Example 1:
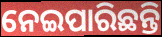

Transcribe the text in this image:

ନେଇପାରିଛନ୍ତି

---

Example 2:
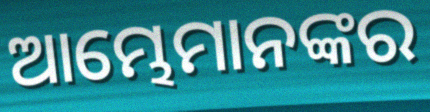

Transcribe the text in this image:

ଆମ୍ଭେମାନଙ୍କର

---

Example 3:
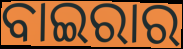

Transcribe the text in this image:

ବାଇରାର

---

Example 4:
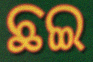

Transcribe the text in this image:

ଛଇ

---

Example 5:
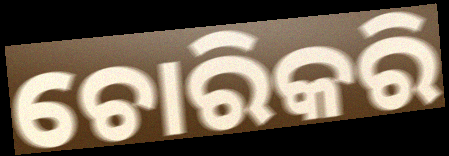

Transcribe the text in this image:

ଚୋରିକରି